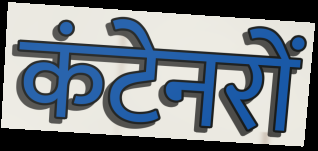
कंटेनरों